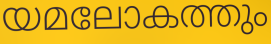
യമലോകത്തും